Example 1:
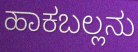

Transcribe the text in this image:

ಹಾಕಬಲ್ಲನು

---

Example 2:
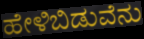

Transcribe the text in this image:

ಹೇಳಿಬಿಡುವೆನು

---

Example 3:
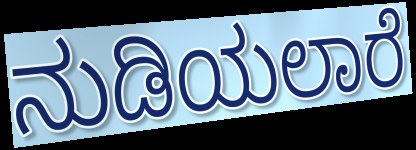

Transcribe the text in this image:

ನುಡಿಯಲಾರೆ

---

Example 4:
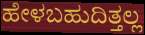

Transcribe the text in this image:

ಹೇಳಬಹುದಿತ್ತಲ್ಲ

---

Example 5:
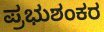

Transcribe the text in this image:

ಪ್ರಭುಶಂಕರ